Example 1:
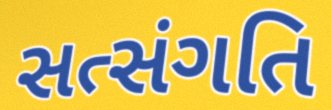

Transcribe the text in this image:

સત્સંગતિ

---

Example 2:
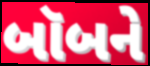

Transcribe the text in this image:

બૉબને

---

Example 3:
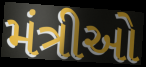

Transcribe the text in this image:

મંત્રીઓ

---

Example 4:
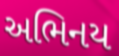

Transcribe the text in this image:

અભિનય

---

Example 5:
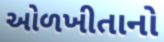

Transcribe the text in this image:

ઓળખીતાનો